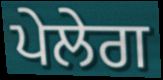
ਪੇਲੇਗ